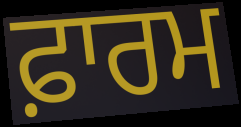
ਫ਼ਾਰਮ